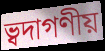
ভ্বদাগণীয়